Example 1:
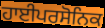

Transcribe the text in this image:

ਹਾਈਪਰਸੋਨਿਕ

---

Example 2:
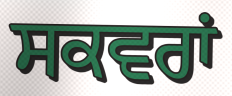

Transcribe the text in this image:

ਸਕਵਰਾਂ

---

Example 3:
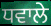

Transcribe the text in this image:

ਧਵਾਲੇ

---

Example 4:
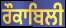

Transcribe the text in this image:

ਰੌਕਾਬਿਲੀ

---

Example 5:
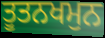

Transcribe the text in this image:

ਤੂਤਨਖਮੁਨ